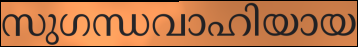
സുഗന്ധവാഹിയായ